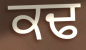
ਕਢ